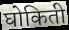
घोकिती